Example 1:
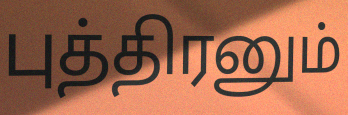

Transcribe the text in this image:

புத்திரனும்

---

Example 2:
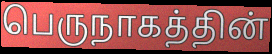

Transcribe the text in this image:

பெருநாகத்தின்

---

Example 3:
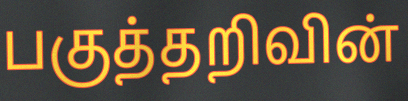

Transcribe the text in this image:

பகுத்தறிவின்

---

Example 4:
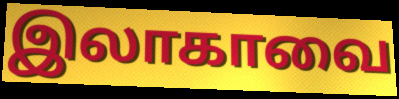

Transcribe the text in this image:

இலாகாவை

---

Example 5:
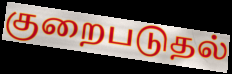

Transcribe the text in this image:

குறைபடுதல்